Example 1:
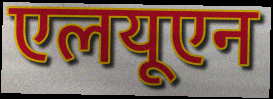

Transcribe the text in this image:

एलयूएन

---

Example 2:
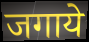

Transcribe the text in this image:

जगाये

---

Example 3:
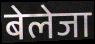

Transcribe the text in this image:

बेलेजा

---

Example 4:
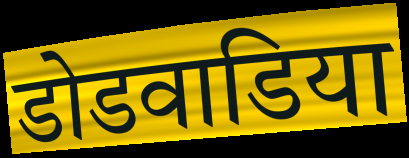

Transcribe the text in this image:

डोडवाडिया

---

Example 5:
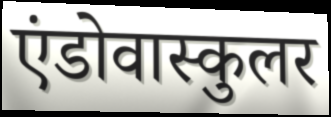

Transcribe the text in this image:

एंडोवास्कुलर